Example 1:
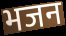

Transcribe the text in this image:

भजन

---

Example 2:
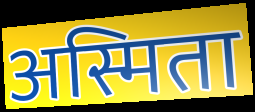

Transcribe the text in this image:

अस्मिता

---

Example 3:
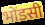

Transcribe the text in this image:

भोंडसी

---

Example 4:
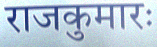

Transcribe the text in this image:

राजकुमारः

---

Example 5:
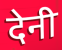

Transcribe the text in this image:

देनी